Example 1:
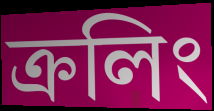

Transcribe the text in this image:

ক্রলিং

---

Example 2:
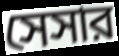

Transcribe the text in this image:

সেসার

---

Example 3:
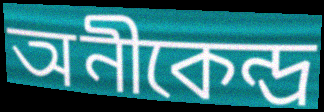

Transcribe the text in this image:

অনীকেন্দ্র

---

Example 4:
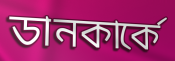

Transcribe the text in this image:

ডানকার্কে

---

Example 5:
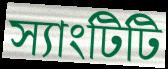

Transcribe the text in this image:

স্যাংটিটি